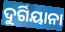
ଦୁର୍ଗିୟାନା